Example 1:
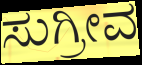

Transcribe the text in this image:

ಸುಗ್ರೀವ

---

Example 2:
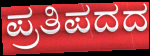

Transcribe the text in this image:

ಪ್ರತಿಪದದ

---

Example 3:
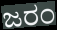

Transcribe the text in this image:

ಜರಂ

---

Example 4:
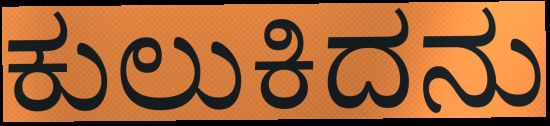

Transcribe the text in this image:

ಕುಲುಕಿದನು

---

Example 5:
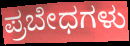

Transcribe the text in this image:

ಪ್ರಬೇಧಗಳು